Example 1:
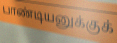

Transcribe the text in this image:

பாண்டியனுக்குக்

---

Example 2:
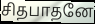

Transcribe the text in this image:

சிதபாதனே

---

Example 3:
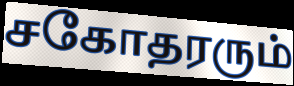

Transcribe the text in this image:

சகோதரரும்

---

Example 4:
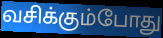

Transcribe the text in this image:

வசிக்கும்போது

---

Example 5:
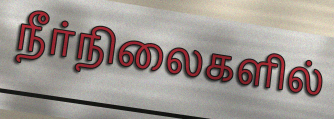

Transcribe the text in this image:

நீர்நிலைகளில்